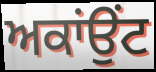
ਅਕਾਂਉਂਟ